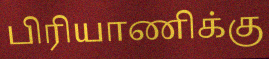
பிரியாணிக்கு